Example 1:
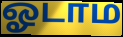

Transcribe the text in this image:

ஓடாம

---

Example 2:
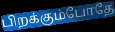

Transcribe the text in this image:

பிறக்கும்போதே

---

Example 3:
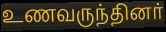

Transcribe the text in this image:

உணவருந்தினர்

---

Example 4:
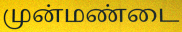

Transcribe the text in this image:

முன்மண்டை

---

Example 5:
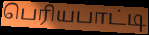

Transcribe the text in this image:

பெரியபாட்டி